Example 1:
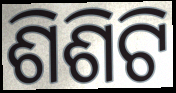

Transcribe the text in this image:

ଶିଶିଟି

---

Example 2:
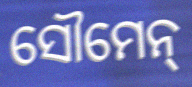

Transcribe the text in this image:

ସୌମେନ୍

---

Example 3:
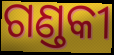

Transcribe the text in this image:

ଗଣ୍ଡକୀ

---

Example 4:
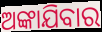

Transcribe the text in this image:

ଅଙ୍କାଯିବାର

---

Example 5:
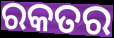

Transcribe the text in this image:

ରକତର